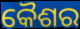
କୈଶର